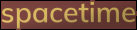
spacetime